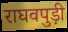
राघवपुड़ी